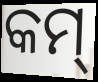
କମ୍